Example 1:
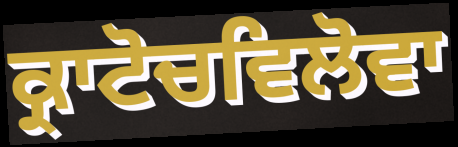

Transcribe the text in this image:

ਕ੍ਰਾਟੋਚਵਿਲੋਵਾ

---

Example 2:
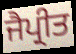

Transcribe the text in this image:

ਜੈਪ੍ਰੀਤ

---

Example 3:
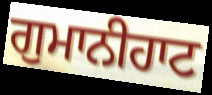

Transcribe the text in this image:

ਗੁਮਾਨੀਹਾਟ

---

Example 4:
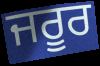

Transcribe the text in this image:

ਜਰੂਰ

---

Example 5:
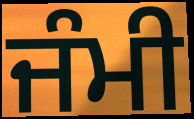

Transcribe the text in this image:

ਜੰਮੀ